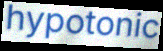
hypotonic